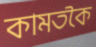
কামতকৈ